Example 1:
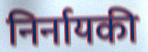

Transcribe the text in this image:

निर्नायकी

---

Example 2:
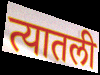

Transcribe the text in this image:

त्यातली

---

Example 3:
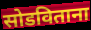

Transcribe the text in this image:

सोडविताना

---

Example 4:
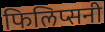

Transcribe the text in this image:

फिलिप्सनी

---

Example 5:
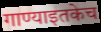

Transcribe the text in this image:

गाण्याइतकेच